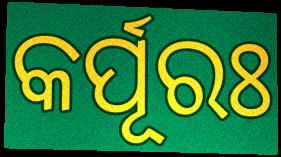
କର୍ପୂରଃ